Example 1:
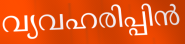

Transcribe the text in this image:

വ്യവഹരിപ്പിൻ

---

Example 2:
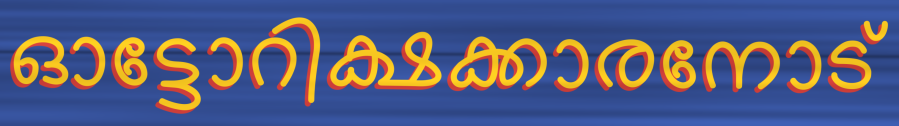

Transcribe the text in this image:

ഓട്ടോറിക്ഷക്കാരനോട്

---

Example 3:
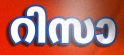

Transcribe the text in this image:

റിസാ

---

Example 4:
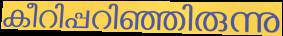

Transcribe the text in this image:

കീറിപ്പറിഞ്ഞിരുന്നു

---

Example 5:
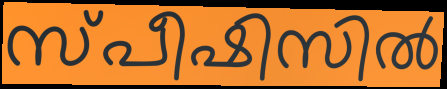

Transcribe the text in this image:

സ്പീഷിസിൽ